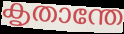
കൃതാന്തേ